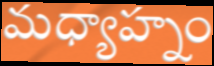
మధ్యాహ్నం